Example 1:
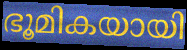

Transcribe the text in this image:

ഭൂമികയായി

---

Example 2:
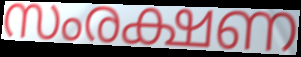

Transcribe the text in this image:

സംരക്ഷണ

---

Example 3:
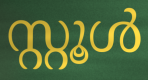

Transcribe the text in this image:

സ്റ്റൂൾ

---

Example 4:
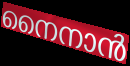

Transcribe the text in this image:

നൈനാൻ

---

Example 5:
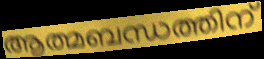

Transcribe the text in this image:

ആത്മബന്ധത്തിന്